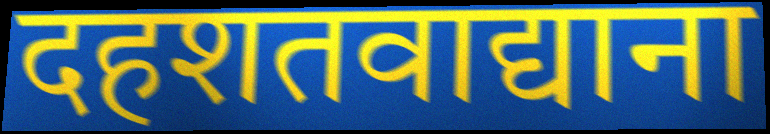
दहशतवाद्याना